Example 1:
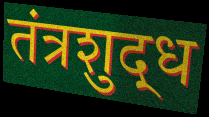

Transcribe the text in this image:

तंत्रशुद्ध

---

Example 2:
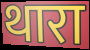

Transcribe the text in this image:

थारा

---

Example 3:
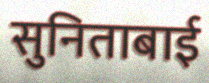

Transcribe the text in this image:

सुनिताबाई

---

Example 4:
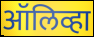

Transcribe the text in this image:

ऑलिव्हा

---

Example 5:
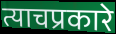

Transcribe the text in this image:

त्याचप्रकारे